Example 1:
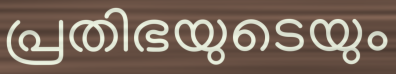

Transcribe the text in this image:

പ്രതിഭയുടെയും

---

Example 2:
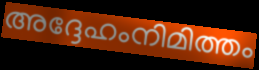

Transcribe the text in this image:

അദ്ദേഹംനിമിത്തം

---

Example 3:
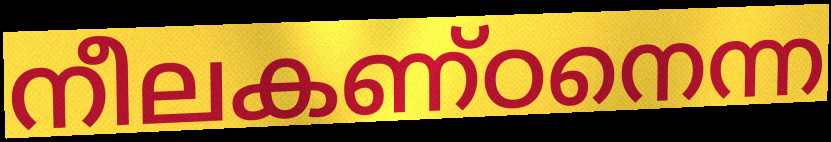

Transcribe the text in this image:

നീലകണ്ഠനെന്ന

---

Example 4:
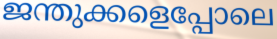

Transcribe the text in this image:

ജന്തുക്കളെപ്പോലെ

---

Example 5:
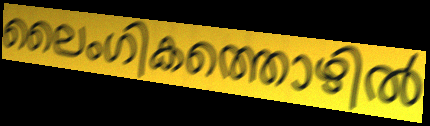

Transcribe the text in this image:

ലൈംഗികത്തൊഴിൽ